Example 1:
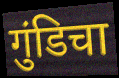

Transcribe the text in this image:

गुंडिचा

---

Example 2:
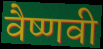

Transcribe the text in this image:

वैष्णवी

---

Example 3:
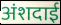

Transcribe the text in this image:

अंशदाई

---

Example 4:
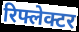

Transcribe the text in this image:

रिफ्लेक्टर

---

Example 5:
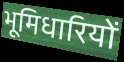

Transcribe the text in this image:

भूमिधारियों